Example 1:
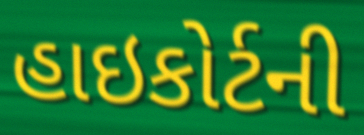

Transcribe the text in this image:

હાઇકોર્ટની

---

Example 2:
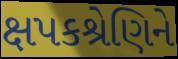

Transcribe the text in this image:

ક્ષપકશ્રેણિને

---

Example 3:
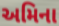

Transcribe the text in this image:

અમિના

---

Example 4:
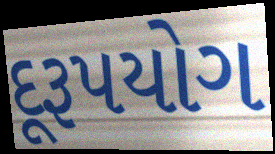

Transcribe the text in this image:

દૂરૂપયોગ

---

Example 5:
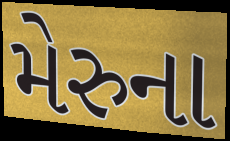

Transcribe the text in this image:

મેરુના